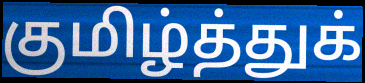
குமிழ்த்துக்